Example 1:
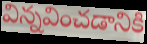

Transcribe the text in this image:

విన్నవించడానికి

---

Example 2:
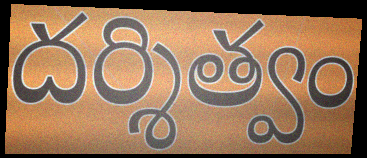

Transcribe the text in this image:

దర్శిత్వం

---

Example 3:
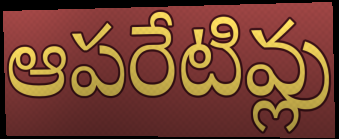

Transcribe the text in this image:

ఆపరేటివ్లు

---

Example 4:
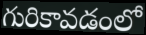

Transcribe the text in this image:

గురికావడంలో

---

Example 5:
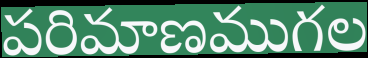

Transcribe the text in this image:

పరిమాణముగల